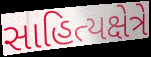
સાહિત્યક્ષેત્રે